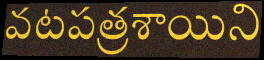
వటపత్రశాయిని